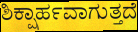
ಶಿಕ್ಷಾರ್ಹವಾಗುತ್ತದೆ